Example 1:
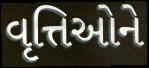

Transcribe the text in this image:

વૃત્તિઓને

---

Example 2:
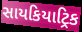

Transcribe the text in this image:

સાયકિયાટ્રિક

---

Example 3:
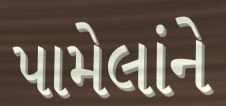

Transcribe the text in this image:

પામેલાંને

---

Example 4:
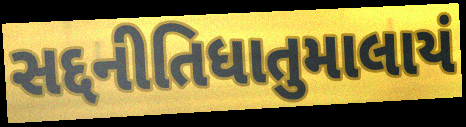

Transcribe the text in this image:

સદ્દનીતિધાતુમાલાયં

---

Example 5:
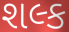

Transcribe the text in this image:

શલ્ક